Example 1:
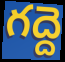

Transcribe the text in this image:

గద్దె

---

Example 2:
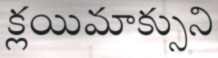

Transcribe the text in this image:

క్లయిమాక్సుని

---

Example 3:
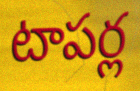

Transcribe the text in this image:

టాపర్ల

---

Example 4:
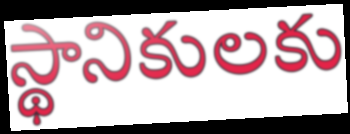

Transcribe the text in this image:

స్థానికులకు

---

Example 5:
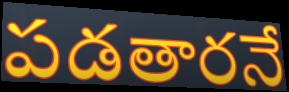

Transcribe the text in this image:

పడతారనే